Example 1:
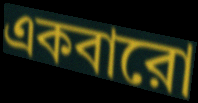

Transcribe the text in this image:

একবারো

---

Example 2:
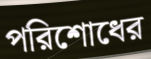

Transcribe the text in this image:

পরিশোধের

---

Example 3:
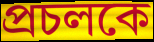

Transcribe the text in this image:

প্রচলকে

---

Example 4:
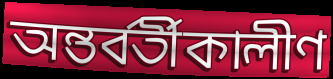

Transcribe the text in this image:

অন্তর্বর্তীকালীণ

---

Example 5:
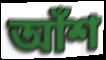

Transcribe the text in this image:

আঁশ